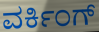
ವರ್ಕಿಂಗ್